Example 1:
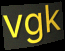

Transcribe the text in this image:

vgk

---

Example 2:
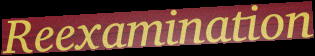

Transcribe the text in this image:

Reexamination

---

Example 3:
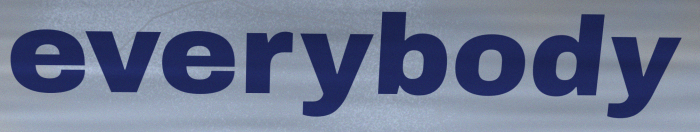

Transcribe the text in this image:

everybody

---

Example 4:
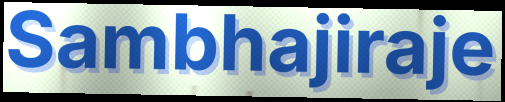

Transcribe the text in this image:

Sambhajiraje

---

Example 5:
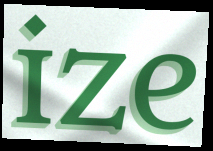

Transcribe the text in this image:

ize